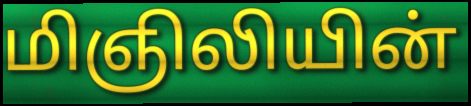
மிஞிலியின்